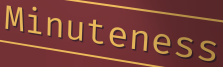
Minuteness